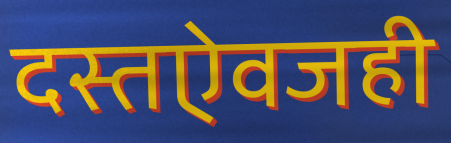
दस्तऐवजही